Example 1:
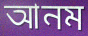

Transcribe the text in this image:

আনম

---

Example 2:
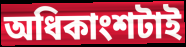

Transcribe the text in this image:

অধিকাংশটাই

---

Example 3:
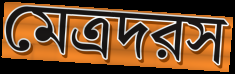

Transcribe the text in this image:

মেত্রদরস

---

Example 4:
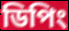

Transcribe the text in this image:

ডিপিং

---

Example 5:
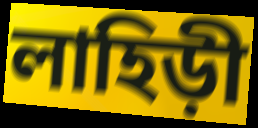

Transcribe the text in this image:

লাহিড়ী